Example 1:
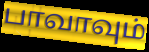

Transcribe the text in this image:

பாவாவும்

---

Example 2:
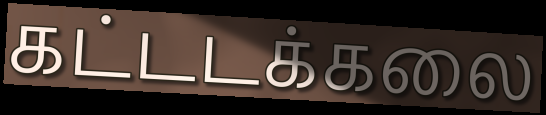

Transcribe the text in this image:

கட்டடக்கலை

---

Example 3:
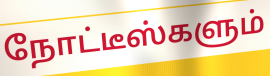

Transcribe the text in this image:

நோட்டீஸ்களும்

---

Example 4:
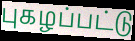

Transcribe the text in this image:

புகழப்பட்டு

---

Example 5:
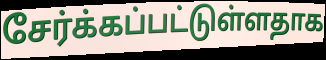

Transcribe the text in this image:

சேர்க்கப்பட்டுள்ளதாக